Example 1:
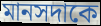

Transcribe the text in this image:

মানসদাকে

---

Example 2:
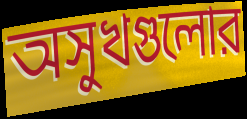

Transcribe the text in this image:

অসুখগুলোর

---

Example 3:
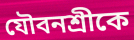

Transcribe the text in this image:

যৌবনশ্রীকে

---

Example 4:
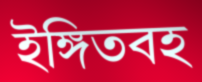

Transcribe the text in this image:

ইঙ্গিতবহ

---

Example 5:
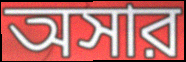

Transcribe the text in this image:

অসার